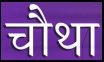
चौथा